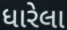
ધારેલા